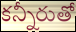
కన్నీరుతో